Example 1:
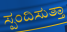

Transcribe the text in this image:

ಸ್ಪಂದಿಸುತ್ತಾ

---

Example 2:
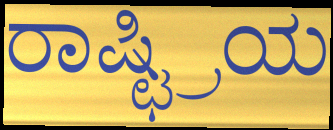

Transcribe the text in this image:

ರಾಷ್ಟ್ರಿಯ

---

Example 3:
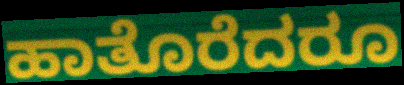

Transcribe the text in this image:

ಹಾತೊರೆದರೂ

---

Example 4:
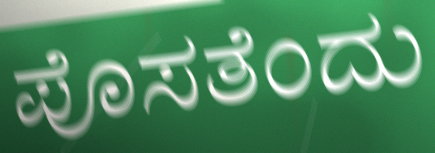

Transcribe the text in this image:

ಪೊಸತೆಂದು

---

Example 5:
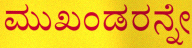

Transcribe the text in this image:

ಮುಖಂಡರನ್ನೇ